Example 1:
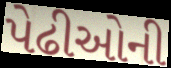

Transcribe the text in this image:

પેઢીઓની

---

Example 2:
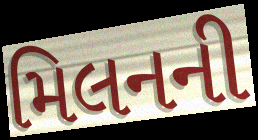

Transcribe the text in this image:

મિલનની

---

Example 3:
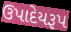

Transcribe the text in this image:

ઉપાદેયરૂપ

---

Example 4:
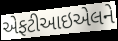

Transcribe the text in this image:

એફટીઆઇએલને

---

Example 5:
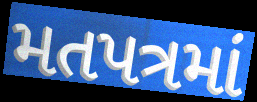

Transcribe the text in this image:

મતપત્રમાં